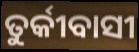
ତୁର୍କୀବାସୀ